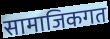
सामाजिकगत